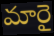
మారై